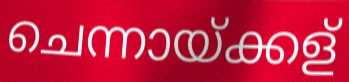
ചെന്നായ്ക്കള്